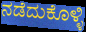
ನಡೆದುಕೊಳ್ಳಿ